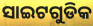
ସାଇଟଗୁଡିକ